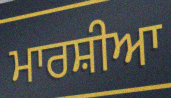
ਮਾਰਸ਼ੀਆ